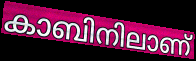
കാബിനിലാണ്